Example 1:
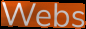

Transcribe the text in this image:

Webs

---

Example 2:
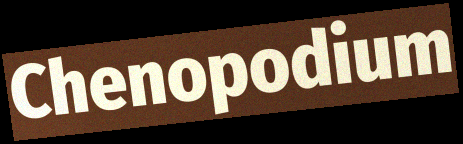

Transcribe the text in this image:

Chenopodium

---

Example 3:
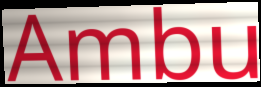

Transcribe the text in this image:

Ambu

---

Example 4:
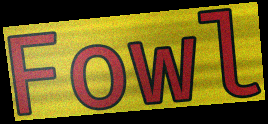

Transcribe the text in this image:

Fowl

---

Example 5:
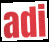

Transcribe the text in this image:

adi